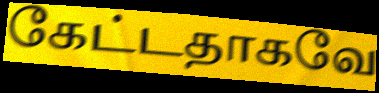
கேட்டதாகவே